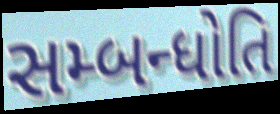
સમ્બન્ધોતિ